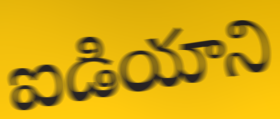
ఐడియాని